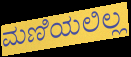
ಮಣಿಯಲಿಲ್ಲ